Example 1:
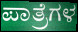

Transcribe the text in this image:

ಪಾತ್ರೆಗಳ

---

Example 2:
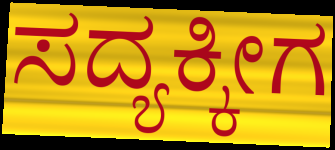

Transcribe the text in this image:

ಸದ್ಯಕ್ಕೀಗ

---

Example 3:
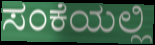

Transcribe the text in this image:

ಸಂಕೆಯಲ್ಲಿ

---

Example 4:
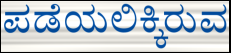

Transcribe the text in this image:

ಪಡೆಯಲಿಕ್ಕಿರುವ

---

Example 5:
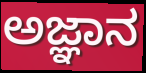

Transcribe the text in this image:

ಅಜ್ಞಾನ